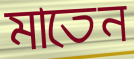
মাতেন